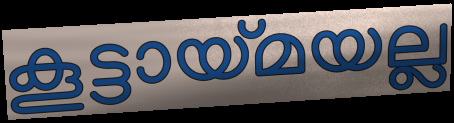
കൂട്ടായ്മയല്ല